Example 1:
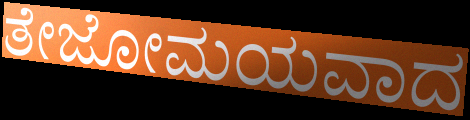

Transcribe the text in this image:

ತೇಜೋಮಯವಾದ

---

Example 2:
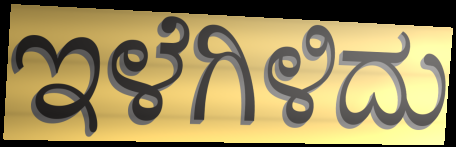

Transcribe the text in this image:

ಇಳೆಗಿಳಿದು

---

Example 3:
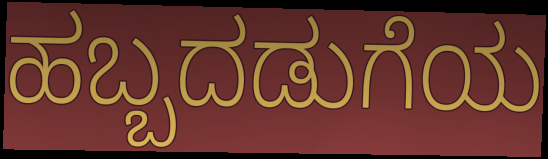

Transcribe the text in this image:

ಹಬ್ಬದಡುಗೆಯ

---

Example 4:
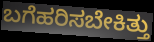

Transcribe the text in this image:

ಬಗೆಹರಿಸಬೇಕಿತ್ತು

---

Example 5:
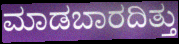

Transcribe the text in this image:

ಮಾಡಬಾರದಿತ್ತು